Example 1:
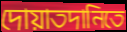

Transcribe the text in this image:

দোয়াতদানিতে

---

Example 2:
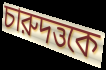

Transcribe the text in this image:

চারুদত্তকে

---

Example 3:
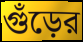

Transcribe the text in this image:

গুঁড়ের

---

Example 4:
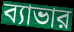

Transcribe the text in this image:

ব্যাভার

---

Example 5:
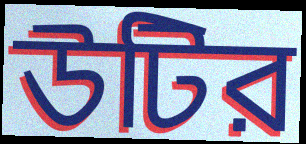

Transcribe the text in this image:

উটির